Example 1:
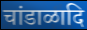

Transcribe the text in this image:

चांडाळादि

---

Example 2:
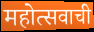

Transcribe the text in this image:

महोत्सवाची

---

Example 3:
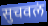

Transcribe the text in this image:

सुचवलं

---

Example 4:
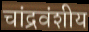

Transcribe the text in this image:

चांद्रवंशीय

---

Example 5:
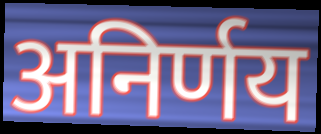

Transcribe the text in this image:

अनिर्णय